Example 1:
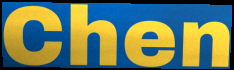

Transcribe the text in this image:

Chen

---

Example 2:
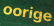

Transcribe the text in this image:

oorige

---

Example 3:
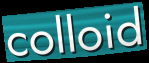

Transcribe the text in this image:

colloid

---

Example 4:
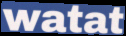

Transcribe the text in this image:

watat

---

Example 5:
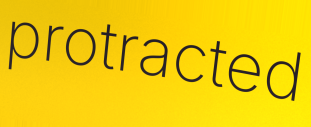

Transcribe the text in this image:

protracted